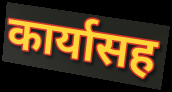
कार्यासह